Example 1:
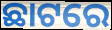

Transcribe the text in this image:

ଛାଟରେ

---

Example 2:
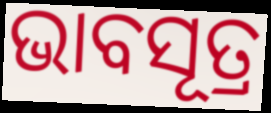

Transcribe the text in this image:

ଭାବସୂତ୍ର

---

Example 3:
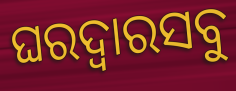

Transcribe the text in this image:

ଘରଦ୍ୱାରସବୁ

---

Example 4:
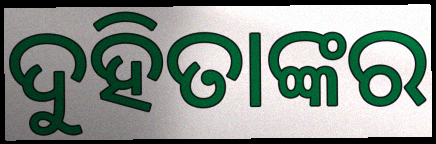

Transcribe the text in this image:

ଦୁହିତାଙ୍କର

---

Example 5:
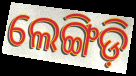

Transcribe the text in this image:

ଲେଙ୍ଗିଡ଼ି